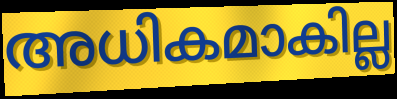
അധികമാകില്ല